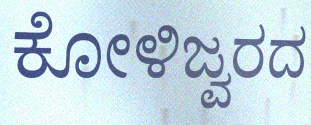
ಕೋಳಿಜ್ವರದ